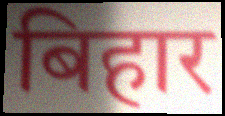
बिहार